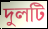
দুলটি